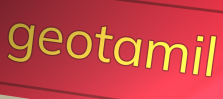
geotamil